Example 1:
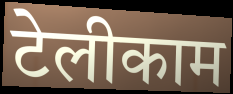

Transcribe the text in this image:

टेलीकाम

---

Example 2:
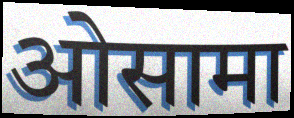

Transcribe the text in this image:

ओसामा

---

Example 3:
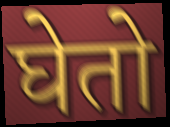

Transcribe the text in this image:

घेतो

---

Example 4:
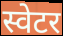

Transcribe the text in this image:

स्वेटर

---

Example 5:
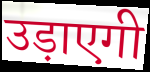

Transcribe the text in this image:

उड़ाएगी